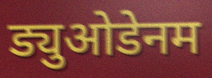
ड्युओडेनम